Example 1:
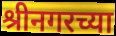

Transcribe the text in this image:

श्रीनगरच्या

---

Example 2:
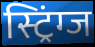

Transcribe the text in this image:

स्ट्रिंग्ज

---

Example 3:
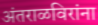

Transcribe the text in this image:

अंतराळविरांना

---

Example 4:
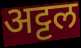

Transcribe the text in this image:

अट्टल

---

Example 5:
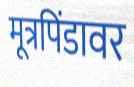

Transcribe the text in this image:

मूत्रपिंडावर